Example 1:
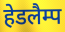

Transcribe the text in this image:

हेडलैम्प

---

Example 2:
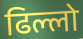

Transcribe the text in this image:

ढिल्लो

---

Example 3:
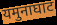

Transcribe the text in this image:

यमुनाघाट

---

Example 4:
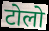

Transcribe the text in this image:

टोलो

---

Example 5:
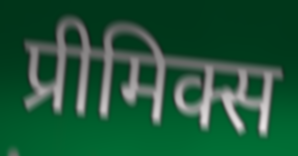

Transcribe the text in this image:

प्रीमिक्स